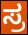
ಸ್ರ